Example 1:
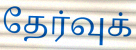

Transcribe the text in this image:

தேர்வுக்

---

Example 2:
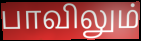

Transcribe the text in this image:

பாவிலும்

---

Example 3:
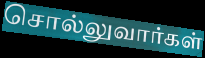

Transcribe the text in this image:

சொல்லுவார்கள்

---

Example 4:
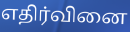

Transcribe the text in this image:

எதிர்வினை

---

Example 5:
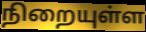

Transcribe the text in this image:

நிறையுள்ள